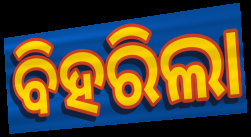
ବିହରିଲା